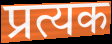
प्रत्यक